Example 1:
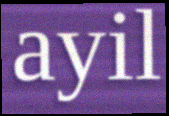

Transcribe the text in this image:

ayil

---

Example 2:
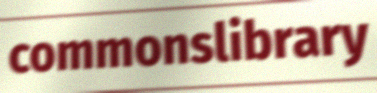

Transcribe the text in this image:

commonslibrary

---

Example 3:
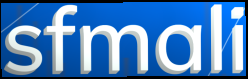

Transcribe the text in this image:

sfmali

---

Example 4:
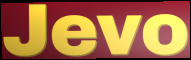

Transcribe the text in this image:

Jevo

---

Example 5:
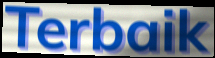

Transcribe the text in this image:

Terbaik